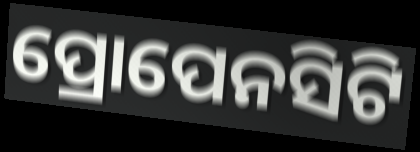
ପ୍ରୋପେନସିଟି